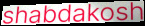
shabdakosh